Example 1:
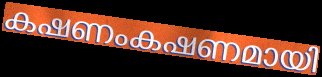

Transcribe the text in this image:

കഷണംകഷണമായി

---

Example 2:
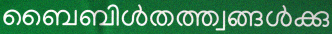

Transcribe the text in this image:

ബൈബിൾതത്ത്വങ്ങൾക്കു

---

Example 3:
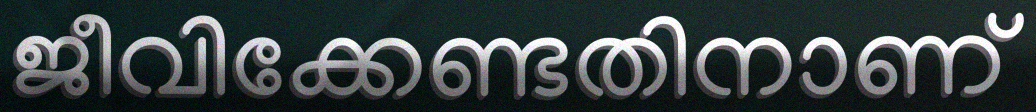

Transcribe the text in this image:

ജീവിക്കേണ്ടതിനാണ്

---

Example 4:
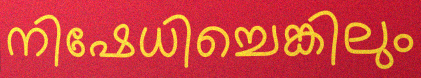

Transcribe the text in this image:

നിഷേധിച്ചെങ്കിലും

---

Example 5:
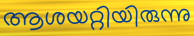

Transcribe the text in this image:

ആശയറ്റിയിരുന്നു